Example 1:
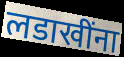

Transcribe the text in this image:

लडाखींना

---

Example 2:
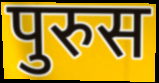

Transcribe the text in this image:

पुरुस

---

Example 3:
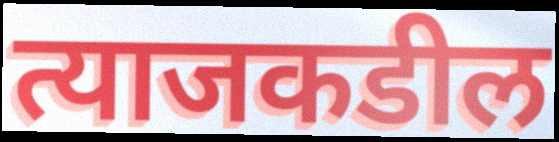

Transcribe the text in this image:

त्याजकडील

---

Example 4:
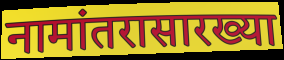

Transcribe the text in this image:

नामांतरासारख्या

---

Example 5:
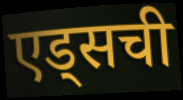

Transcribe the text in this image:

एड्सची